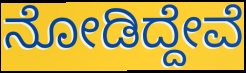
ನೋಡಿದ್ದೇವೆ